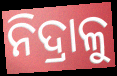
ନିଦ୍ରାଳୁ